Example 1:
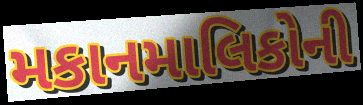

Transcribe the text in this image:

મકાનમાલિકોની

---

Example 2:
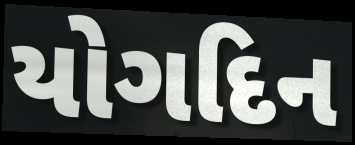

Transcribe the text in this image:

યોગદિન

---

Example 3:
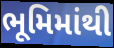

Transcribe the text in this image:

ભૂમિમાંથી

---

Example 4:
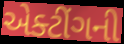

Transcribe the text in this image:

એક્ટીંગની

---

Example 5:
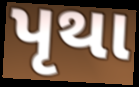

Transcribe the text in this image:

પૃથા